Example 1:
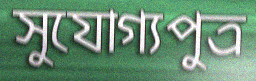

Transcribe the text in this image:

সুযোগ্যপুত্র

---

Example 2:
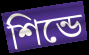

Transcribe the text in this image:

শিন্ডে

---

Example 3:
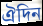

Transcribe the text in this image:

ঐদিন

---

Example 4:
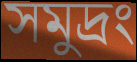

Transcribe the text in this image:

সমুদ্রং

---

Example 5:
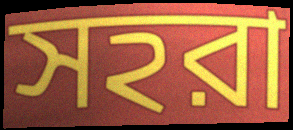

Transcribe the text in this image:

সহরা